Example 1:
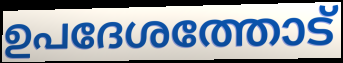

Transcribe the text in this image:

ഉപദേശത്തോട്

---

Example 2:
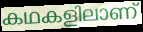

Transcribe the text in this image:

കഥകളിലാണ്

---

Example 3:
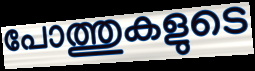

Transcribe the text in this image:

പോത്തുകളുടെ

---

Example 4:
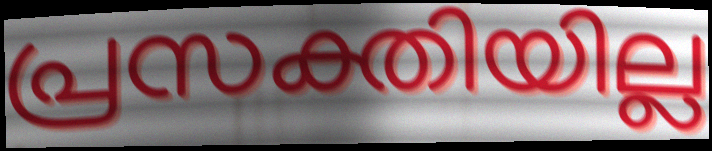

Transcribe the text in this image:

പ്രസക്തിയില്ല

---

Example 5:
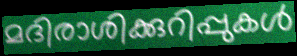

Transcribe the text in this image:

മദിരാശിക്കുറിപ്പുകൾ